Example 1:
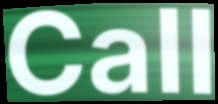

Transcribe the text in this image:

Call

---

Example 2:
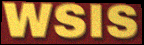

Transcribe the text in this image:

WSIS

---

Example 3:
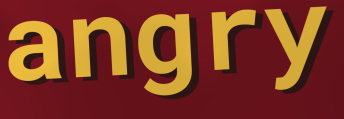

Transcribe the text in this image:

angry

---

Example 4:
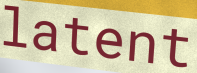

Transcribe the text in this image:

latent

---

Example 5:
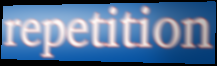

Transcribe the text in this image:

repetition